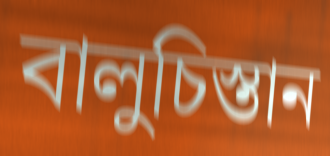
বালুচিস্তান